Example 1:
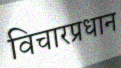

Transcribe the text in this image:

विचारप्रधान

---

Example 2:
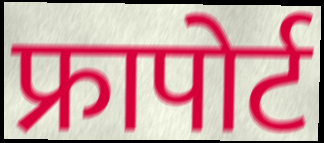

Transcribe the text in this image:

फ्रापोर्ट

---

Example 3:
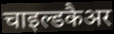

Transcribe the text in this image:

चाइल्डकैअर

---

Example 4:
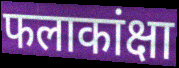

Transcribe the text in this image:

फलाकांक्षा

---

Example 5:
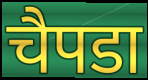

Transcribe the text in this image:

चैपडा